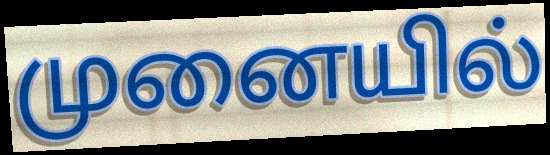
முனையில்